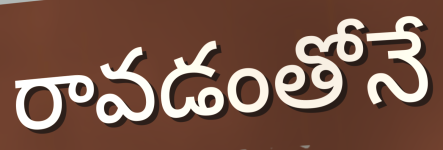
రావడంతోనే